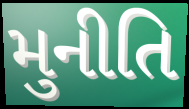
મુનીતિ